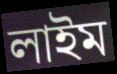
লাইম